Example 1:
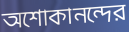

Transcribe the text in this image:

অশোকানন্দের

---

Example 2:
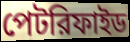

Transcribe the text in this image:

পেটরিফাইড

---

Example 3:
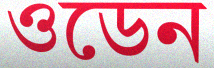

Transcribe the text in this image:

ওডেন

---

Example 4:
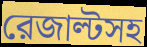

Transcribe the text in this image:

রেজাল্টসহ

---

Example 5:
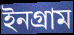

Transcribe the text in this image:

ইনগ্রাম